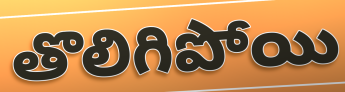
తొలిగిపోయి